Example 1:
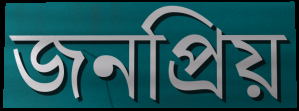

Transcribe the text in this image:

জনপ্ৰিয়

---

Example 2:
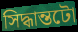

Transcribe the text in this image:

সিদ্ধান্তটো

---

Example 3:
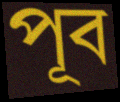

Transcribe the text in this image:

পূব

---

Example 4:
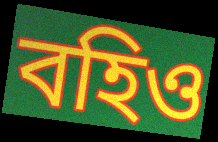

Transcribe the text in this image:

বহিও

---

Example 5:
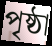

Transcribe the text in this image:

পৃষ্ঠা